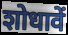
शोधावें